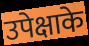
उपेक्षाके